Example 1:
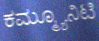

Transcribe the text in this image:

ಕಮ್ಮ್ಯೂನಿಟಿ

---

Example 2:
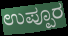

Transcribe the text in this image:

ಉಪ್ಪೂರ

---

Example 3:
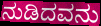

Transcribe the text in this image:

ನುಡಿದವನು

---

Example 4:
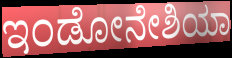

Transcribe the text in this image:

ಇಂಡೋನೇಶಿಯಾ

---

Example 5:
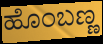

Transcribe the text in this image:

ಹೊಂಬಣ್ಣ